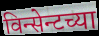
विन्सेन्टच्या